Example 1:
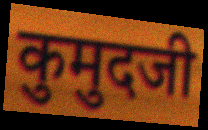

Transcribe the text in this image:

कुमुदजी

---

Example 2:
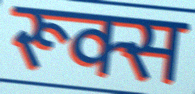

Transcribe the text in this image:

रूक्स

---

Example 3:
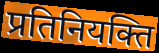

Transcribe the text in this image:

प्रतिनियक्ति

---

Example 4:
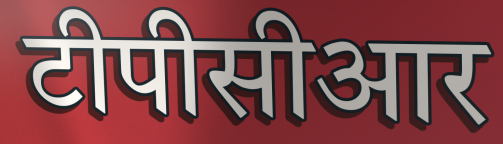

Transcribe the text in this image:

टीपीसीआर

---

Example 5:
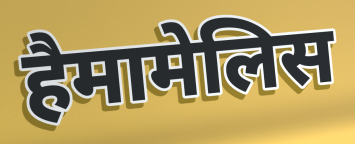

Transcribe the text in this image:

हैमामेलिस